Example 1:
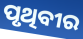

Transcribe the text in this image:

ପୃଥିବୀର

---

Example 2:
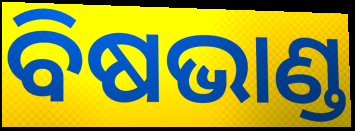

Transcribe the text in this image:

ବିଷଭାଣ୍ଡ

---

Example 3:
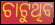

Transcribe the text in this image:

ଚାଟୁଥିବ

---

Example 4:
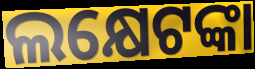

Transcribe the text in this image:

ଲକ୍ଷେଟଙ୍କା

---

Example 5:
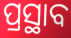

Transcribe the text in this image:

ପ୍ରସ୍ଥାବ